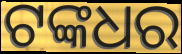
ଟଙ୍କଧର